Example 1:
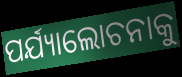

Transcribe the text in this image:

ପର୍ଯ୍ୟାଲୋଚନାକୁ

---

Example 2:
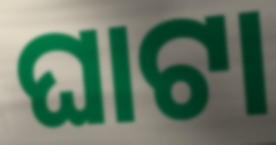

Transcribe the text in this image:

ଘାଟା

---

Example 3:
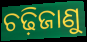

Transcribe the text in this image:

ଚଢ଼ିଜାଣୁ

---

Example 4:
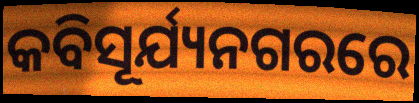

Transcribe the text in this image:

କବିସୂର୍ଯ୍ୟନଗରରେ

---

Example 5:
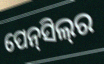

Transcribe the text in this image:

ପେନ୍‌ସିଲ୍‌ର